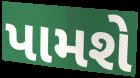
પામશે